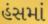
હંસમાં